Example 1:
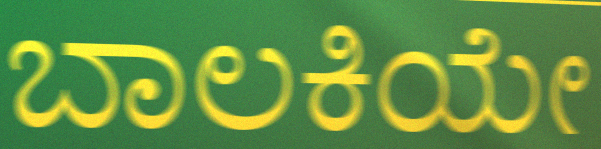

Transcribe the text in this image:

ಬಾಲಕಿಯೇ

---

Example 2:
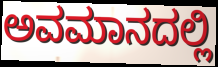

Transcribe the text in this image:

ಅವಮಾನದಲ್ಲಿ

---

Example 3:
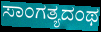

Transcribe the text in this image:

ಸಾಂಗತ್ಯದಂಥ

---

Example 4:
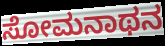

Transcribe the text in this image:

ಸೋಮನಾಥನ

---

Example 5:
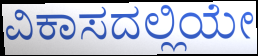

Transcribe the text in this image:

ವಿಕಾಸದಲ್ಲಿಯೇ